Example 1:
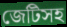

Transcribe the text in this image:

জেটিসহ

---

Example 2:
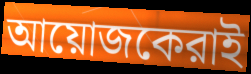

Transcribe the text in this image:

আয়োজকেরাই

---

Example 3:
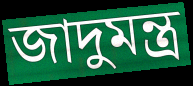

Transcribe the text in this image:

জাদুমন্ত্র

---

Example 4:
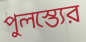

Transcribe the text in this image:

পুলস্ত্যের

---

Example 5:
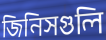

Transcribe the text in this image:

জিনিসগুলি